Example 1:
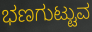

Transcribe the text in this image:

ಭಣಗುಟ್ಟುವ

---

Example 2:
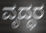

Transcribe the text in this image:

ವೃದ್ಧರ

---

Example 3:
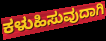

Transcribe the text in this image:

ಕಳುಹಿಸುವುದಾಗಿ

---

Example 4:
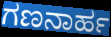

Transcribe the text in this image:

ಗಣನಾರ್ಹ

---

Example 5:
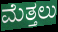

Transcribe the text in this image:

ಮೆತ್ತಲು